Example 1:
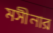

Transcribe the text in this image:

মসীনার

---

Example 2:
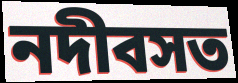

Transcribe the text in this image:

নদীবসত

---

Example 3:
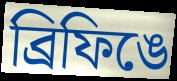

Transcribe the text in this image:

ব্রিফিঙে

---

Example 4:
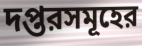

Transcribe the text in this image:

দপ্তরসমূহের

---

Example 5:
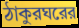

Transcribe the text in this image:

ঠাকুরঘরের